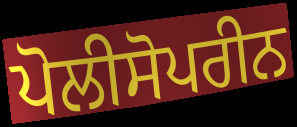
ਪੋਲੀਸੋਪਰੀਨ